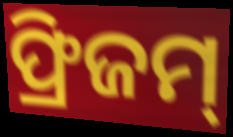
ଫ୍ରିଜମ୍